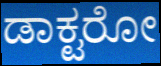
ಡಾಕ್ಟರೋ